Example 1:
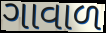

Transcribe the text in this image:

ગાવાળ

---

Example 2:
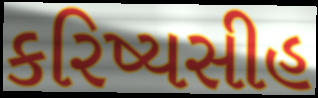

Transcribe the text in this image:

કરિષ્યસીહ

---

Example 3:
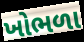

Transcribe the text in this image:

ખોભળા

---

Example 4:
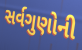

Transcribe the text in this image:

સર્વગુણોની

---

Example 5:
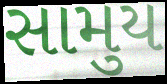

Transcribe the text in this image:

સામુય